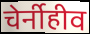
चेर्नीहीव